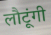
लौटूंगी